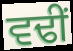
ਵਢੀਂ